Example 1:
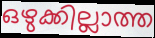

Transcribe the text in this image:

ഒഴുക്കില്ലാത്ത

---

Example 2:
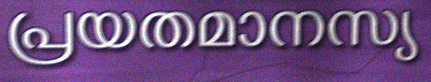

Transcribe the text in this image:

പ്രയതമാനസ്യ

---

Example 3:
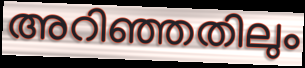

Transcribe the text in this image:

അറിഞ്ഞതിലും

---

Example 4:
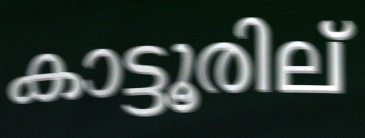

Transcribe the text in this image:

കാട്ടൂരില്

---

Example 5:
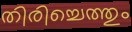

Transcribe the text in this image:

തിരിച്ചെത്തും